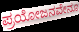
ಪ್ರಯೋಜನವೇನೂ